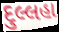
દુલ્લહા